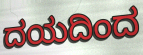
ದಯದಿಂದ